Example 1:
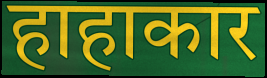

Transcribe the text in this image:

हाहाकार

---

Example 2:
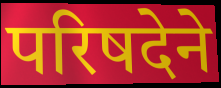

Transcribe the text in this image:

परिषदेने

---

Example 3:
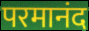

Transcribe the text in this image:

परमानंद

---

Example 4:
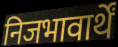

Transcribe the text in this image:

निजभावार्थें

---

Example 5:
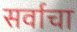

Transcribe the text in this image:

सर्वाचा